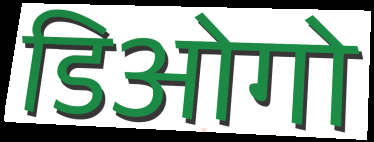
डिओगो